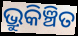
ଭ୍ରୁକିଞ୍ଚିତ